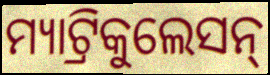
ମ୍ୟାଟ୍ରିକୁଲେସନ୍